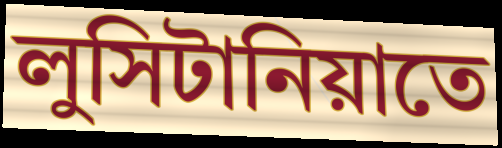
লুসিটানিয়াতে